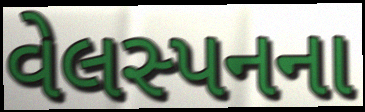
વેલસ્પનના